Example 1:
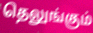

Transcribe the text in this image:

தெலுங்கும்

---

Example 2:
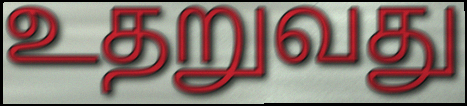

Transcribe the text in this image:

உதறுவது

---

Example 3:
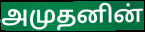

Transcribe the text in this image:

அமுதனின்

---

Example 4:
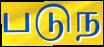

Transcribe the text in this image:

படுந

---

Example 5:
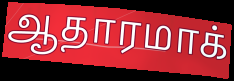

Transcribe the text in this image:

ஆதாரமாக்